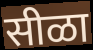
सीळा